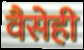
वैसेही